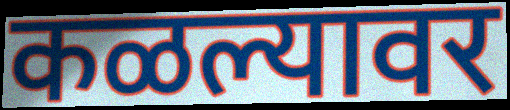
कळल्यावर